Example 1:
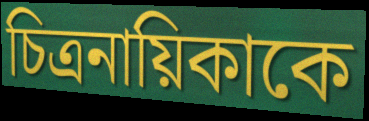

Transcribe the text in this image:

চিত্রনায়িকাকে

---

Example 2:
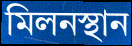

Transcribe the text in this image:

মিলনস্থান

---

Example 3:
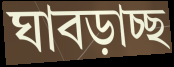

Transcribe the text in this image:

ঘাবড়াচ্ছ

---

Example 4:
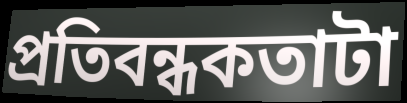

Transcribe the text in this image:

প্রতিবন্ধকতাটা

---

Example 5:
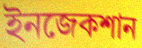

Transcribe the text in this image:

ইনজেকশান